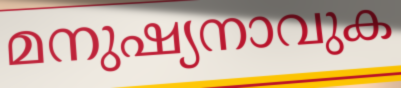
മനുഷ്യനാവുക